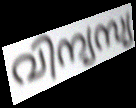
വിന്യസ്യ